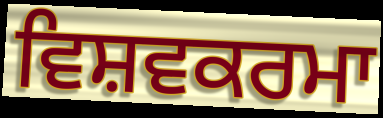
ਵਿਸ਼ਵਕਰਮਾ